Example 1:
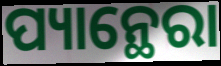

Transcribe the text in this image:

ପ୍ୟାନ୍ଥେରା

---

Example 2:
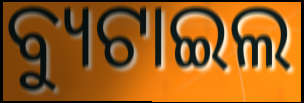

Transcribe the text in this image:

ବ୍ୟୁଟାଇଲ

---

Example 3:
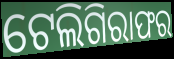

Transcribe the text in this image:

ଟେଲିଗିରାଫର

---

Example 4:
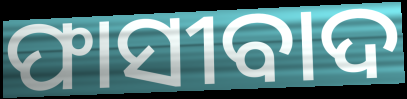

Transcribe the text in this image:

ଫାସୀବାଦ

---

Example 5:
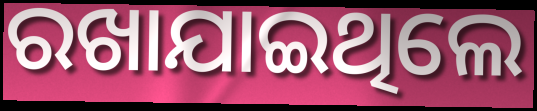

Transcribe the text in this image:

ରଖାଯାଇଥିଲେ